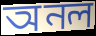
অনল